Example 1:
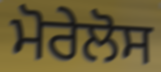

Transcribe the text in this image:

ਮੋਰੇਲੋਸ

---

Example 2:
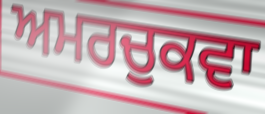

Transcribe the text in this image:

ਅਮਰਚੁਕਵਾ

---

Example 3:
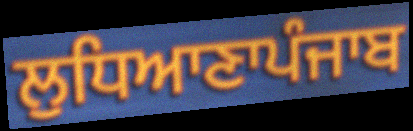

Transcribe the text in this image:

ਲੁਧਿਆਣਾਪੰਜਾਬ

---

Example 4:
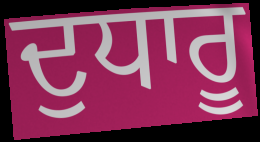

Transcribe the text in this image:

ਦੁਧਾਰੂ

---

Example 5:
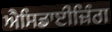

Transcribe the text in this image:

ਐਸਿਡਾਈਜ਼ਿੰਗ